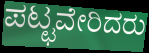
ಪಟ್ಟವೇರಿದರು